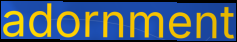
adornment